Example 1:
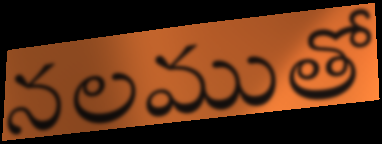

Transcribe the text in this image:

నలముతో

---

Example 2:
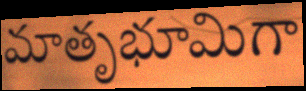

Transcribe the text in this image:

మాతృభూమిగా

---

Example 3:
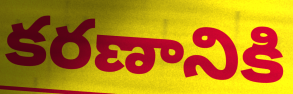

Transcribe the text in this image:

కరణానికి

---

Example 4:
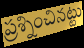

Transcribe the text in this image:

ప్రశ్నించినట్టు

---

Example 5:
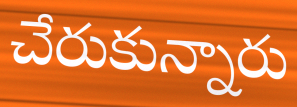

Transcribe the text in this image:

చేరుకున్నారు